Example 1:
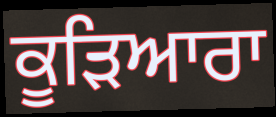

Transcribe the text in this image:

ਕੂੜਿਆਰਾ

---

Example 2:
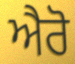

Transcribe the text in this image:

ਐਰੋ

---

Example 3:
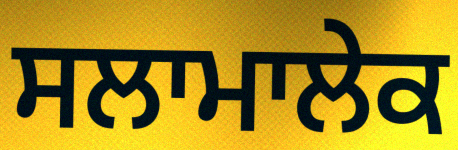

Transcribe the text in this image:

ਸਲਾਮਾਲੇਕ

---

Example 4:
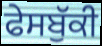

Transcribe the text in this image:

ਫੇਸਬੁੱਕੀ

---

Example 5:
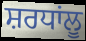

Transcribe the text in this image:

ਸ਼ਰਧਾਂਲੂ